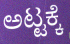
ಅಟ್ಟಕ್ಕೆ